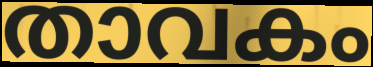
താവകം